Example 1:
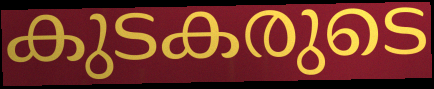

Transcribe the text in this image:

കുടകരുടെ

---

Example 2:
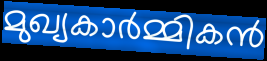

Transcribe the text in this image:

മുഖ്യകാർമ്മികൻ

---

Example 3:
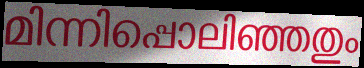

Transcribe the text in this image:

മിന്നിപ്പൊലിഞ്ഞതും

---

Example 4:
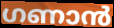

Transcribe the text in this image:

ഗണാൻ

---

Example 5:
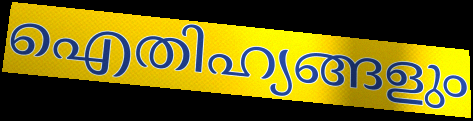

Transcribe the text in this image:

ഐതിഹ്യങ്ങളും